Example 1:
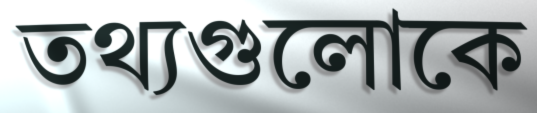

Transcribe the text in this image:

তথ্যগুলোকে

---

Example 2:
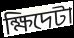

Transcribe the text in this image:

ক্ষিদেটা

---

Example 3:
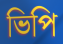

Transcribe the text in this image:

ভিপি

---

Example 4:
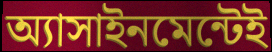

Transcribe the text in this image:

অ্যাসাইনমেন্টেই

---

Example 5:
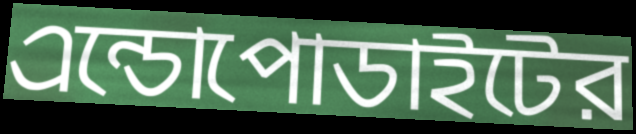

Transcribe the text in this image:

এন্ডোপোডাইটের